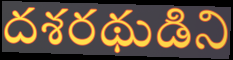
దశరథుడిని